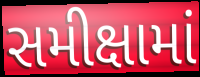
સમીક્ષામાં